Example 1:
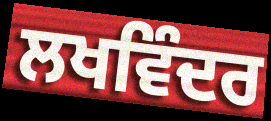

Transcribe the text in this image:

ਲਖਵਿੰਦਰ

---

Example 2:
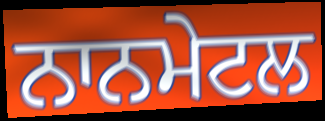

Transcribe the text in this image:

ਨਾਨਮੇਟਲ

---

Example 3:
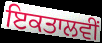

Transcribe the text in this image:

ਇਕਤਾਲਵੀਂ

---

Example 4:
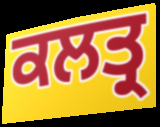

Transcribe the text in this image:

ਕਲਤ੍ਰ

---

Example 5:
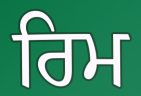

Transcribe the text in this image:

ਰਿਮ